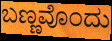
ಬಣ್ಣವೊಂದು